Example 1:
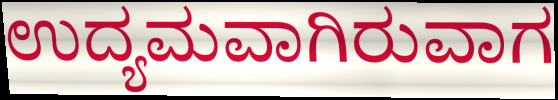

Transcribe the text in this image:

ಉದ್ಯಮವಾಗಿರುವಾಗ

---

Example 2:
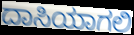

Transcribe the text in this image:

ದಾಸಿಯಾಗಲಿ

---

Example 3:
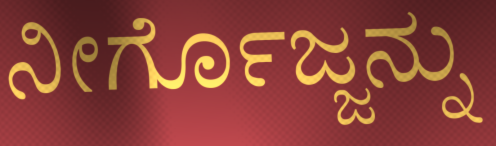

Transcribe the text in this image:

ನೀರ್ಗೊಜ್ಜನ್ನು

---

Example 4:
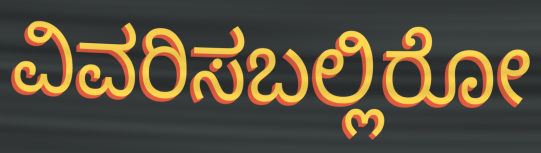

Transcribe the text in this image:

ವಿವರಿಸಬಲ್ಲಿರೋ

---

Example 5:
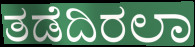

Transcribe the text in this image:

ತಡೆದಿರಲಾ